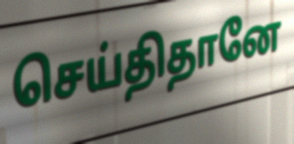
செய்திதானே